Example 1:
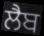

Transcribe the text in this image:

ਲੈਬ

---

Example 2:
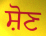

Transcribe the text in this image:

ਸ਼ੋਣ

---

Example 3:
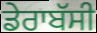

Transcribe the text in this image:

ਡੇਰਾਬੱਸੀ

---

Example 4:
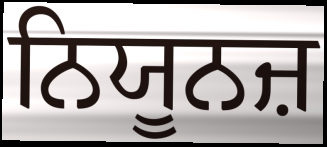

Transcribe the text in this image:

ਨਿਯੂਨਜ਼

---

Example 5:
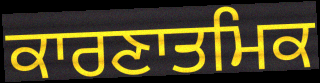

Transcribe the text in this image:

ਕਾਰਣਾਤਮਿਕ